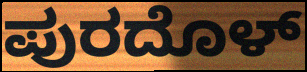
ಪುರದೊಳ್